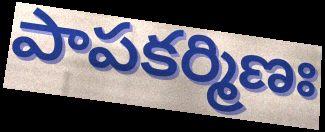
పాపకర్మిణః